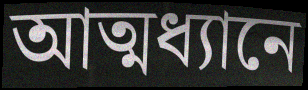
আত্মধ্যানে